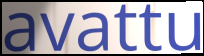
avattu